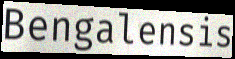
Bengalensis